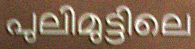
പുലിമുട്ടിലെ